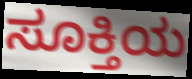
ಸೂಕ್ತಿಯ